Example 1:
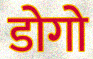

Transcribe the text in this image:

डोगो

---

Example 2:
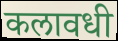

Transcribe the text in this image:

कलावधी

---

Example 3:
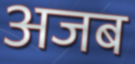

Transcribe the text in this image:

अजब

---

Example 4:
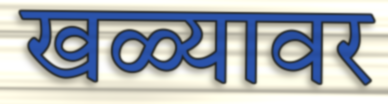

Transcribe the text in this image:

खळ्यावर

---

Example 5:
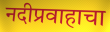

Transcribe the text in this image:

नदीप्रवाहाचा